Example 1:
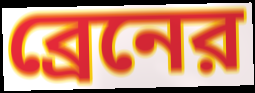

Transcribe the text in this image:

ব্রেনের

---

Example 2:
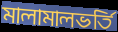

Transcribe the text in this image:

মালামালভর্তি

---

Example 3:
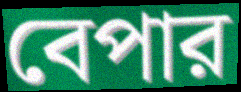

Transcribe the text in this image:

বেপার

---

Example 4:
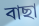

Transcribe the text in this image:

বাছা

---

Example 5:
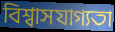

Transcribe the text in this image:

বিশ্বাসযাগ্যতা